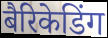
बैरिकेडिंग